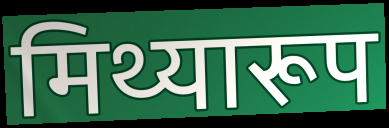
मिथ्यारूप